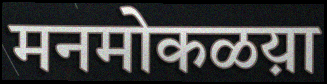
मनमोकळय़ा